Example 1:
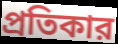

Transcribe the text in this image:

প্রতিকার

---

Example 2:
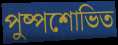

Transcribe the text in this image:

পুষ্পশোভিত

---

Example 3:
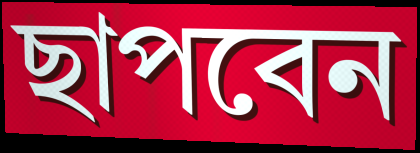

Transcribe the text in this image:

ছাপবেন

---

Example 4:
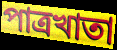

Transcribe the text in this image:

পাত্রখাতা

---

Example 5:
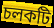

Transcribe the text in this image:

চলকটি